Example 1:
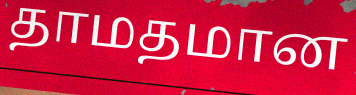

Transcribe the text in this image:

தாமதமான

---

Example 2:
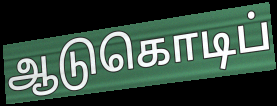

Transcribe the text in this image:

ஆடுகொடிப்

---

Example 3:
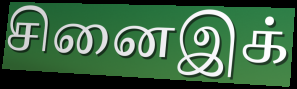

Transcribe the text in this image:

சினைஇக்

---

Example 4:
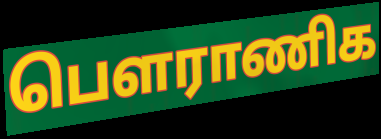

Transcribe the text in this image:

பௌராணிக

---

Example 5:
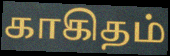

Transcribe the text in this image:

காகிதம்